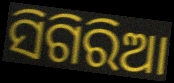
ସିଗିରିଆ